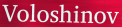
Voloshinov